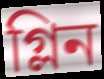
গ্লিন